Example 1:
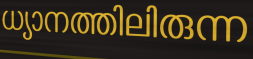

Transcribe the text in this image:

ധ്യാനത്തിലിരുന്ന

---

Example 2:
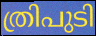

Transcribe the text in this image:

ത്രിപുടി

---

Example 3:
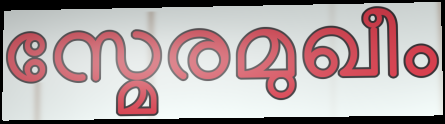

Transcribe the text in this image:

സ്മേരമുഖീം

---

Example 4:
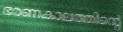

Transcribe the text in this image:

ഭരണകാലത്തിന്റെ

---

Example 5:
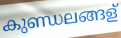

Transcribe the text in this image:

കുണ്ഡലങ്ങള്